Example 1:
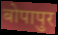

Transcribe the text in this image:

बोपापुर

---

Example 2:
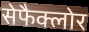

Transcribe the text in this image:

सेफैक्लोर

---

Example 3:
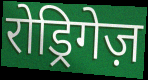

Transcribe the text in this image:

रोड्रिगेज़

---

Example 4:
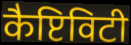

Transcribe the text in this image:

कैप्टिविटी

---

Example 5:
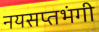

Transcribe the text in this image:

नयसप्तभंगी